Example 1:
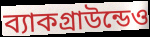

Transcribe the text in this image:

ব্যাকগ্রাউন্ডেও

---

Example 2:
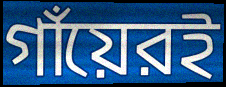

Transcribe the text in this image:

গাঁয়েরই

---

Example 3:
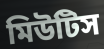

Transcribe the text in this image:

মিউটিস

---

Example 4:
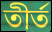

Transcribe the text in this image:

তীর্ত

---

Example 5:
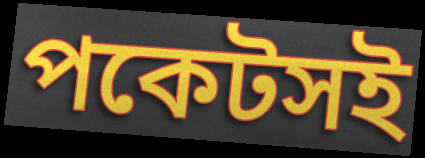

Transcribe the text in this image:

পকেটসই